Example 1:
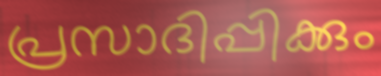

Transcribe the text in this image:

പ്രസാദിപ്പിക്കും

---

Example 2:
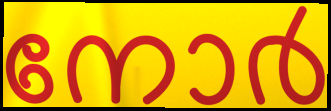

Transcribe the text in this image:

നോർ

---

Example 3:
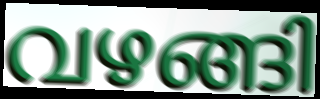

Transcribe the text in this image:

വഴങ്ങി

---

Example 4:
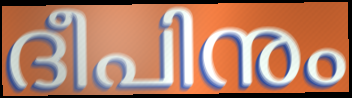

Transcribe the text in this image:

ദീപിനും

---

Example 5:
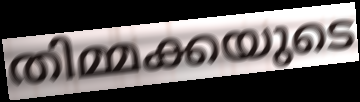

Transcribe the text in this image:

തിമ്മക്കയുടെ